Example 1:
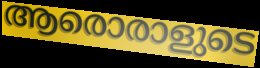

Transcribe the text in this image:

ആരൊരാളുടെ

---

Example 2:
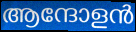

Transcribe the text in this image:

ആന്ദോളൻ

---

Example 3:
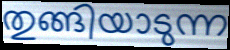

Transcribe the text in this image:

തുങ്ങിയാടുന്ന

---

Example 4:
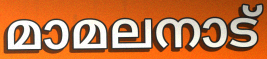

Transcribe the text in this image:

മാമലനാട്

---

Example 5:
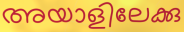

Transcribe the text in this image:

അയാളിലേക്കു